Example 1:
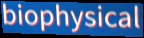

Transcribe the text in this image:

biophysical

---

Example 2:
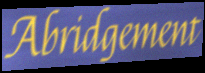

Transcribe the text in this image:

Abridgement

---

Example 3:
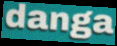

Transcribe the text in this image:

danga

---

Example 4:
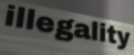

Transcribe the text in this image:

illegality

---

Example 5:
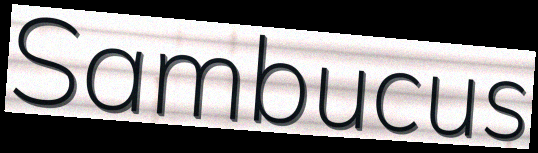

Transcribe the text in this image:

Sambucus